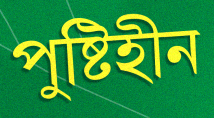
পুষ্টিহীন